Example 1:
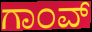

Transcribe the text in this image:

ಗಾಂವ್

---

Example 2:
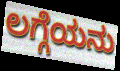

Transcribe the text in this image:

ಲಗ್ಗೆಯನು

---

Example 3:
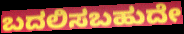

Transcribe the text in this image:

ಬದಲಿಸಬಹುದೇ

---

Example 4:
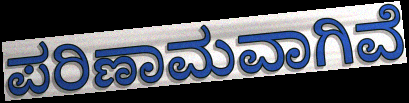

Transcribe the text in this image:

ಪರಿಣಾಮವಾಗಿವೆ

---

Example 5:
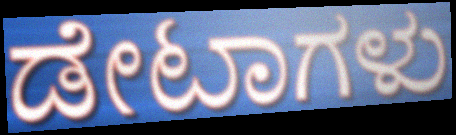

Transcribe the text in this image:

ಡೇಟಾಗಳು